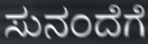
ಸುನಂದೆಗೆ